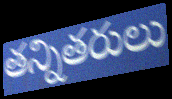
తన్నితరులు